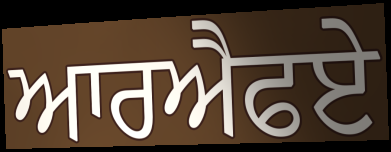
ਆਰਐਫਏ